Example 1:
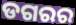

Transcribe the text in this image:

ଡଗରର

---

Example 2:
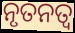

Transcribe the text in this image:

ନୃତନତ୍ୱ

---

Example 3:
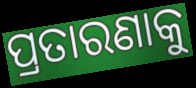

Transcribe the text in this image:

ପ୍ରତାରଣାକୁ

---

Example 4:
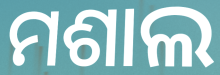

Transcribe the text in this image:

ମଶାଲ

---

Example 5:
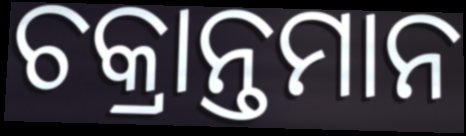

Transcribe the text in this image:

ଚକ୍ରାନ୍ତମାନ